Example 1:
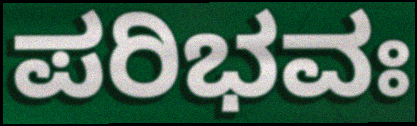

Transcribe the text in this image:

ಪರಿಭವಃ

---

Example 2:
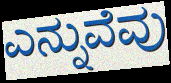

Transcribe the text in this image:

ಎನ್ನುವೆವು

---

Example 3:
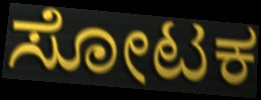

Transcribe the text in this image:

ಸೋಟಕ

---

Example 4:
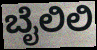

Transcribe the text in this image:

ಬೈಲಿಲಿ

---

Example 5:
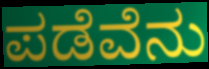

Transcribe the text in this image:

ಪಡೆವೆನು